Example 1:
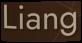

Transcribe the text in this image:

Liang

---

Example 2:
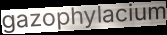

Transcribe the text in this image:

gazophylacium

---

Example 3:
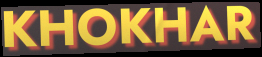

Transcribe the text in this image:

KHOKHAR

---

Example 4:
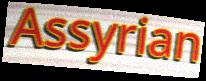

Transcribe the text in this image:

Assyrian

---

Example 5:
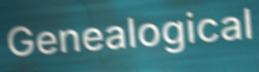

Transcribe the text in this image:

Genealogical